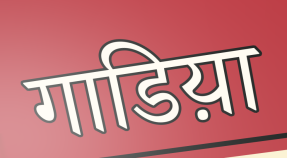
गाडिय़ा